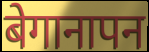
बेगानापन